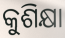
କୁଶିକ୍ଷା